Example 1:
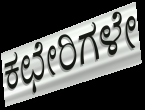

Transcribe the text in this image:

ಕಛೇರಿಗಳೇ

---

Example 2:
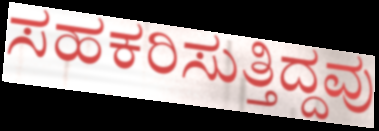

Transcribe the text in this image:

ಸಹಕರಿಸುತ್ತಿದ್ದವು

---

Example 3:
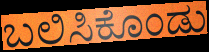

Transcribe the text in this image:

ಬಲಿಸಿಕೊಂಡು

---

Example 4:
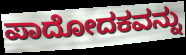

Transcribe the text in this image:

ಪಾದೋದಕವನ್ನು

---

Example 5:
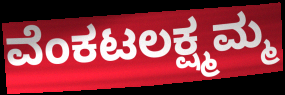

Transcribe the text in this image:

ವೆಂಕಟಲಕ್ಷ್ಮಮ್ಮ